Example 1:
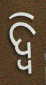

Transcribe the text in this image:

ଦ୍ଵି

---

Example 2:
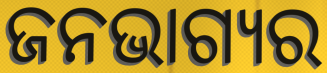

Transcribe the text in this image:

ଜନଭାଗ୍ୟର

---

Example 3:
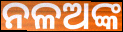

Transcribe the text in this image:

ନଳଅଙ୍କ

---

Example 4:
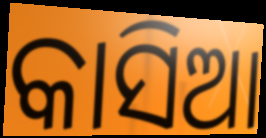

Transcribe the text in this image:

କାସିଆ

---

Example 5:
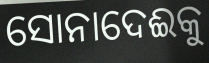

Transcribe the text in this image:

ସୋନାଦେଈକୁ